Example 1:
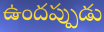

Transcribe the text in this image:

ఉందప్పుడు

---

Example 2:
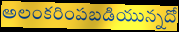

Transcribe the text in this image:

అలంకరింపబడియున్నదో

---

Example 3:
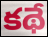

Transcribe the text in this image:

కథే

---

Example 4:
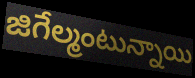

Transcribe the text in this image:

జిగేల్మంటున్నాయి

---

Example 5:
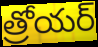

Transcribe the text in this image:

త్రోయర్